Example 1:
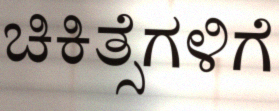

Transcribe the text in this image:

ಚಿಕಿತ್ಸೆಗಳಿಗೆ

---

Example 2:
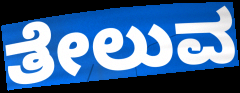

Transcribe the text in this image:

ತೇಲುವ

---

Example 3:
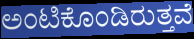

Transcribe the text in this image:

ಅಂಟಿಕೊಂಡಿರುತ್ತವೆ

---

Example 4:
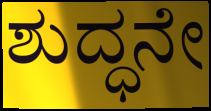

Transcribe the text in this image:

ಶುದ್ಧನೇ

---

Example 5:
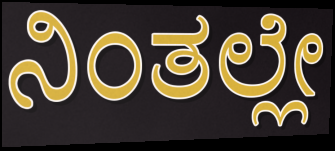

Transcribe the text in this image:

ನಿಂತಲ್ಲೇ